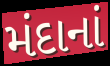
મંદાનાં